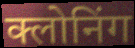
क्‍लोनिंग